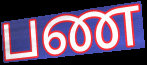
பண